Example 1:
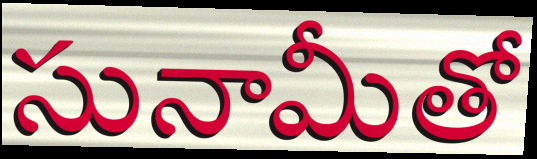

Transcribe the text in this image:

సునామీతో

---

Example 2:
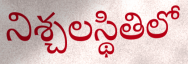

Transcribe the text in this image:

నిశ్చలస్థితిలో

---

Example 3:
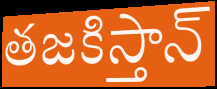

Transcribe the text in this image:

తజకిస్తాన్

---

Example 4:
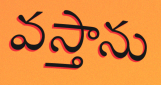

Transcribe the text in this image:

వస్తాను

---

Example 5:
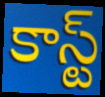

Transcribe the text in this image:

కాస్ట్